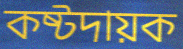
কষ্টদায়ক